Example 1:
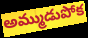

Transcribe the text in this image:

అమ్ముడుపోక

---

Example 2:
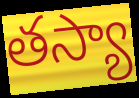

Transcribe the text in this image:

తస్యా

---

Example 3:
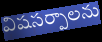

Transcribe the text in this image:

విషసర్పాలను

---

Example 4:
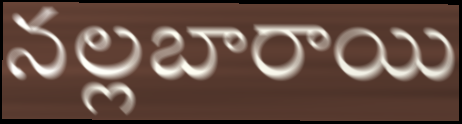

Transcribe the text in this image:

నల్లబారాయి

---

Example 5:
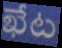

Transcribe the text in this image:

ఖేట